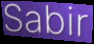
Sabir